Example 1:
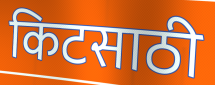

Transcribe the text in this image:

किटसाठी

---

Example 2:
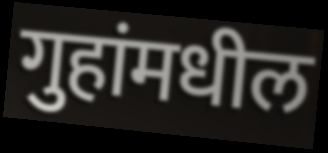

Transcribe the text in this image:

गुहांमधील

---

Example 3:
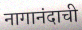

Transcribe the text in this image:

नागानंदाची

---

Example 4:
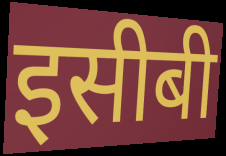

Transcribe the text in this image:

इसीबी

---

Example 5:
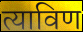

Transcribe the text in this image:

त्याविण